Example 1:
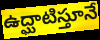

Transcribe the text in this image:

ఉద్ఘాటిస్తూనే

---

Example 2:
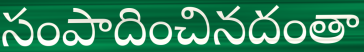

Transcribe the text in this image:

సంపాదించినదంతా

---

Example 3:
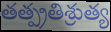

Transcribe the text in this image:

తత్ప్రతిశ్రుత్య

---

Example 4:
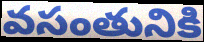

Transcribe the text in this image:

వసంతునికి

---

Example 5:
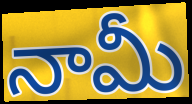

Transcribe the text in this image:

నామీ